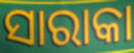
ସାରାକା